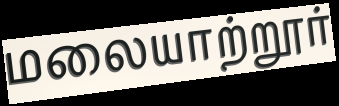
மலையாற்றூர்